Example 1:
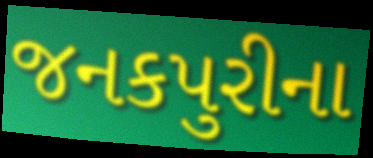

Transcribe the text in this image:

જનકપુરીના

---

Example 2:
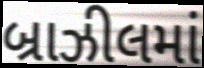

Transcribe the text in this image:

બ્રાઝીલમાં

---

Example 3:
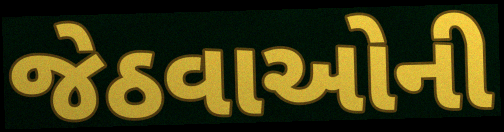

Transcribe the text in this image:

જેઠવાઓની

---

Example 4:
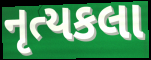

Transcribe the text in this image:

નૃત્યકલા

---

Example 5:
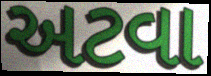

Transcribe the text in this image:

અટવા